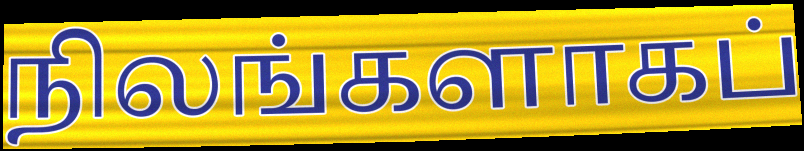
நிலங்களாகப்